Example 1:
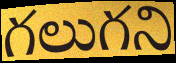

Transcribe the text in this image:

గలుగని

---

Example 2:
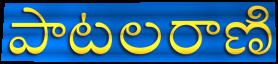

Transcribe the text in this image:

పాటలరాణి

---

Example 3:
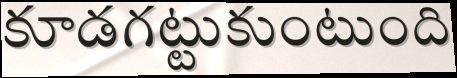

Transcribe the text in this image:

కూడగట్టుకుంటుంది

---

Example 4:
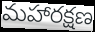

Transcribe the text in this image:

మహారక్షణ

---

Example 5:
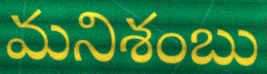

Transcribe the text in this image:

మనిశంబు